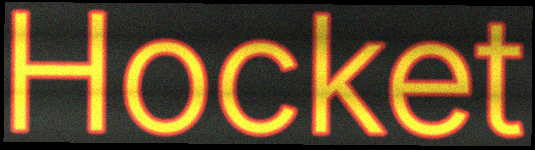
Hocket